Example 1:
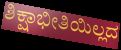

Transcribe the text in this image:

ಶಿಕ್ಷಾಭೀತಿಯಿಲ್ಲದ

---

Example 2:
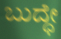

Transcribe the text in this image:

ಬುದ್ಧೇ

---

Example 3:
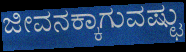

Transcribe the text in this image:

ಜೀವನಕ್ಕಾಗುವಷ್ಟು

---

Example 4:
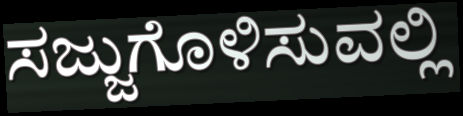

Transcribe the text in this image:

ಸಜ್ಜುಗೊಳಿಸುವಲ್ಲಿ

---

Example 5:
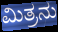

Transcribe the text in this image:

ಮಿತ್ರನು